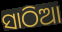
ସାଠିଆ